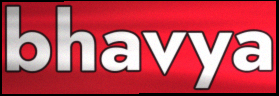
bhavya